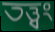
তত্ত্বং